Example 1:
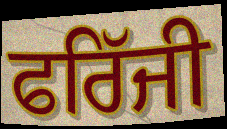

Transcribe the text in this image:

ਫਰਿੱਜੀ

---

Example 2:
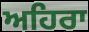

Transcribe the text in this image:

ਅਹਿਰਾ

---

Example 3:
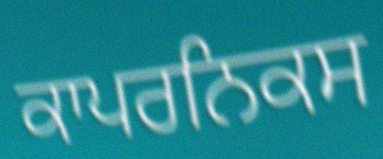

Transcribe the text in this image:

ਕਾਪਰਨਿਕਸ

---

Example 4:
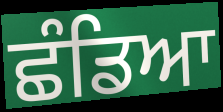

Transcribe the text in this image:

ਛੰਡਿਆ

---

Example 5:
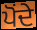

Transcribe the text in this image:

ਪੋਂਦੇ